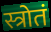
स्त्रोतं